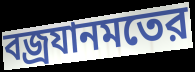
বজ্রযানমতের